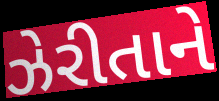
ઝેરીતાને